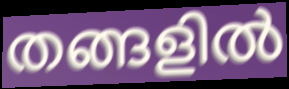
തങ്ങളിൽ